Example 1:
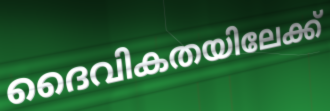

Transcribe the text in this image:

ദൈവികതയിലേക്ക്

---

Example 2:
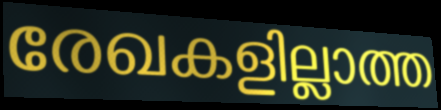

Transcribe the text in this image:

രേഖകളില്ലാത്ത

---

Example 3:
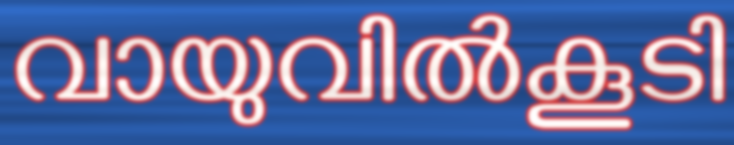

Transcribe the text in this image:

വായുവിൽകൂടി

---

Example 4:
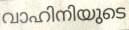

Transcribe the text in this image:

വാഹിനിയുടെ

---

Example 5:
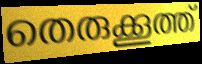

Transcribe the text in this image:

തെരുക്കൂത്ത്